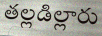
తల్లడిల్లారు